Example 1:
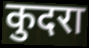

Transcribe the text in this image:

कुदरा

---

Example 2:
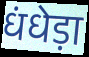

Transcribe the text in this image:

धंधेड़ा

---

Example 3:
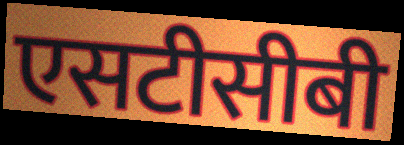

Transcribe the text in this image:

एसटीसीबी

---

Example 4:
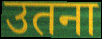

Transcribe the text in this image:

उतना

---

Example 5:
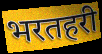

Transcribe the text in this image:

भरतहरी